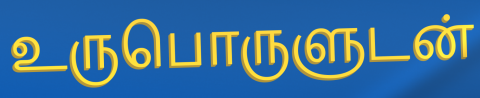
உருபொருளுடன்